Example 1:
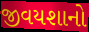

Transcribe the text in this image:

જીવયશાનો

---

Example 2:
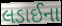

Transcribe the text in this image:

લડાઈના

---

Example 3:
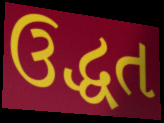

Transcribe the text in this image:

ઉદ્ધત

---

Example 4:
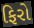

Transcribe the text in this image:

ફિરો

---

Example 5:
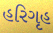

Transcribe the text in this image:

હરિગૃહ